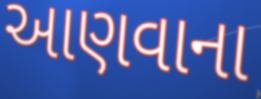
આણવાના